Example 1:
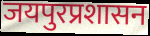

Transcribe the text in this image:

जयपुरप्रशासन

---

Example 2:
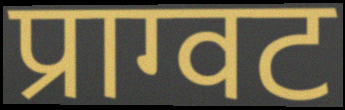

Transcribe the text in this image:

प्राग्वट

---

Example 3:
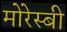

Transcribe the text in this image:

मोरेस्बी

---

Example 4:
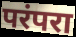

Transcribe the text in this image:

परंपरा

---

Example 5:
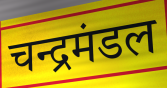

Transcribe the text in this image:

चन्द्रमंडल